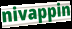
nivappin